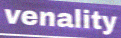
venality